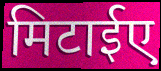
मिटाईए